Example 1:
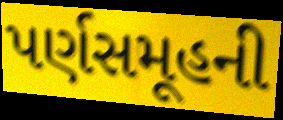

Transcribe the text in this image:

પર્ણસમૂહની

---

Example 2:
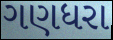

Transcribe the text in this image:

ગણધરા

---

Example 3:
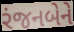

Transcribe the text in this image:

રંજનબેને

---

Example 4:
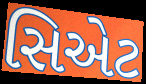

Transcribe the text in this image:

સિએટ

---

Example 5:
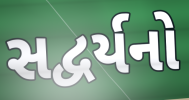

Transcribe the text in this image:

સદ્વર્યનો